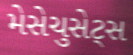
મેસેચુસેટ્સ